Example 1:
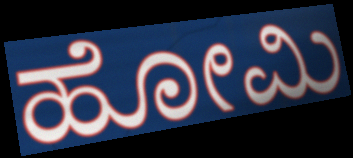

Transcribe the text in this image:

ಹೋಮಿ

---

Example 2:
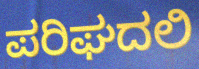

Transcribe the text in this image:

ಪರಿಘದಲಿ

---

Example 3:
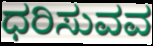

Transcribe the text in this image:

ಧರಿಸುವವ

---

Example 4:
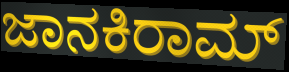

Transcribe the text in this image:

ಜಾನಕಿರಾಮ್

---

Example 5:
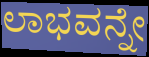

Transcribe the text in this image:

ಲಾಭವನ್ನೇ